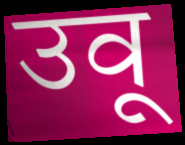
उवू